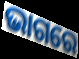
ଭାଗରେ